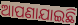
ଆପଣାଯାଇଛି